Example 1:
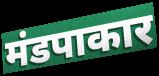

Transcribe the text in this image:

मंडपाकार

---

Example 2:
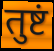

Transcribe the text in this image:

तुष्टं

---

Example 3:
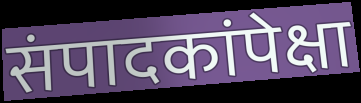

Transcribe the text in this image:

संपादकांपेक्षा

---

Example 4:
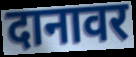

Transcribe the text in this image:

दानावर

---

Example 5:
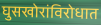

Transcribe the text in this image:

घुसखोरांविरोधात